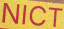
NICT